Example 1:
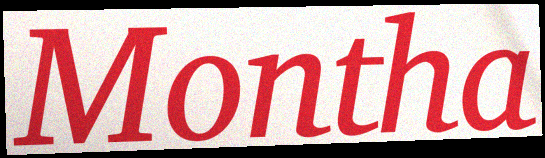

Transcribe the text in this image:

Montha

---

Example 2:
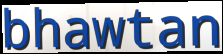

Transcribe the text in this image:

bhawtan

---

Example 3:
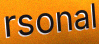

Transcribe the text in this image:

rsonal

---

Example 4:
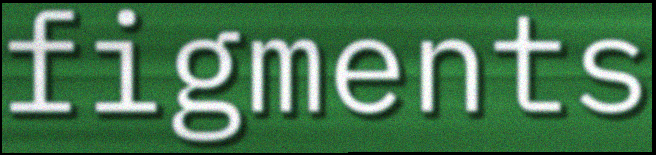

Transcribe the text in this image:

figments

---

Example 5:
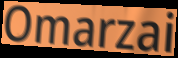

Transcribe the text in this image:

Omarzai